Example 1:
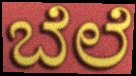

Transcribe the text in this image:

ಬೆಲೆ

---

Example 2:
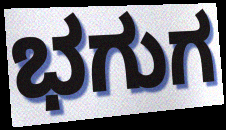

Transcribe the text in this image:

ಭಗುಗ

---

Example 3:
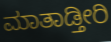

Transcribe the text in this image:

ಮಾತಾಡ್ತೀರಿ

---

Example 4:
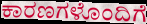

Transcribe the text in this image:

ಕಾರಣಗಳೊಂದಿಗೆ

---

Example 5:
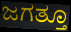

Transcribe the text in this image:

ಜಗತ್ತೂ